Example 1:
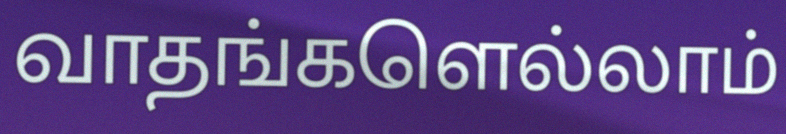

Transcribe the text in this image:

வாதங்களெல்லாம்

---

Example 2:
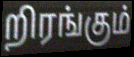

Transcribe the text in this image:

றிரங்கும்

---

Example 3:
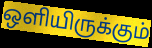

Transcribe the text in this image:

ஒளியிருக்கும்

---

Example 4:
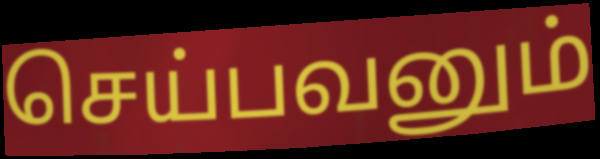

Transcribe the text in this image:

செய்பவனும்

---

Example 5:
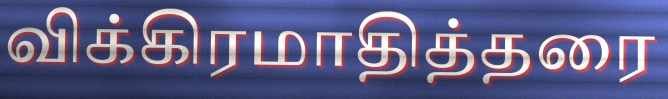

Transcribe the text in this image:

விக்கிரமாதித்தரை